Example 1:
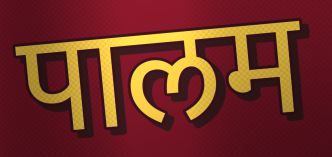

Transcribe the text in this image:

पालम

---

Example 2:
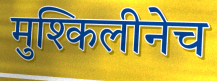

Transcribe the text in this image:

मुश्किलीनेच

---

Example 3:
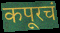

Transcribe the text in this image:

कपूरचं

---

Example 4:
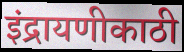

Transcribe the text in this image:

इंद्रायणीकाठी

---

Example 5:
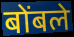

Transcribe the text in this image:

बोंबले